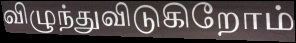
விழுந்துவிடுகிறோம்